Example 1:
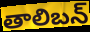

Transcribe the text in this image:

తాలిబన్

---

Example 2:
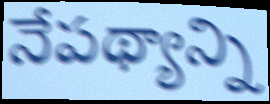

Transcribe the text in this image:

నేపథ్యాన్ని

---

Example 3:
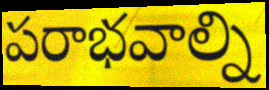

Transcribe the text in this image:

పరాభవాల్ని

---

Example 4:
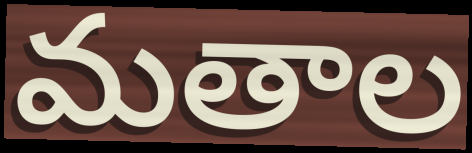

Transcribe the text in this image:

మతాల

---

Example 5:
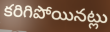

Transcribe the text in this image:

కరిగిపోయినట్లు